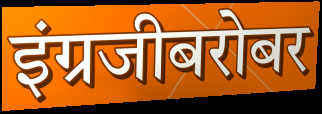
इंग्रजीबरोबर